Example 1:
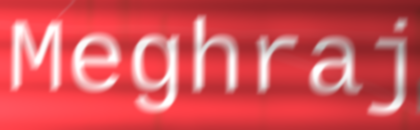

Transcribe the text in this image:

Meghraj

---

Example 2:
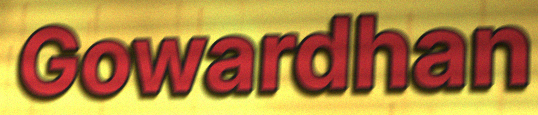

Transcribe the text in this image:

Gowardhan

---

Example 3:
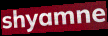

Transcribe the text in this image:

shyamne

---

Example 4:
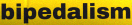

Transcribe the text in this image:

bipedalism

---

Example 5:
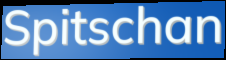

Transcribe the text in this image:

Spitschan